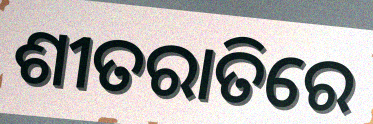
ଶୀତରାତିରେ